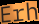
Erh